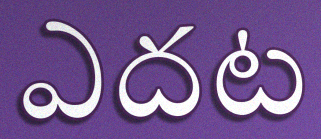
ఎదట